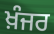
ਖ਼ੰਜਰ